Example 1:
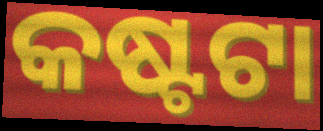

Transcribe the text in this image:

କଷ୍ଟଟା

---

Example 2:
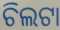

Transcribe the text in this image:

ଚିଲଟା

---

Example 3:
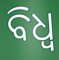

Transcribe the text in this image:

ବିଧ୍ଵ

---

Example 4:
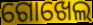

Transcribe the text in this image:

ଗୋଖେଲ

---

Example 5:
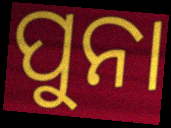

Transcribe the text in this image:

ପୁନା